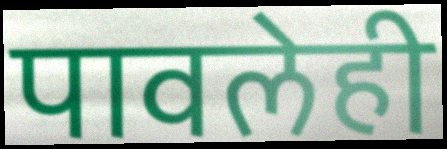
पावलेही